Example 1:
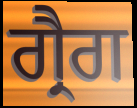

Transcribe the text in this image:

ਗ੍ਰੈਗ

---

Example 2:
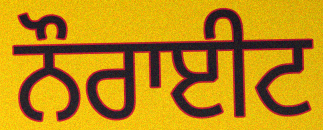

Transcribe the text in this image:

ਨੌਰਾਈਟ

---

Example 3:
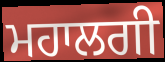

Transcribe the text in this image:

ਮਹਾਲਗੀ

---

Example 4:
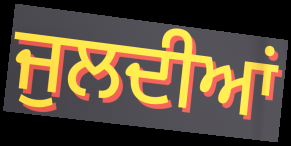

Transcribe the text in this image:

ਜੁਲਦੀਆਂ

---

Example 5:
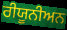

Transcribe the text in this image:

ਰੀਯੂਨੀਅਨ